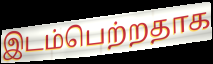
இடம்பெற்றதாக